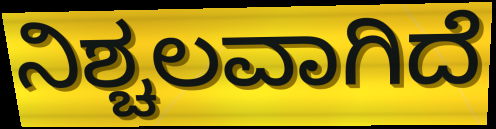
ನಿಶ್ಚಲವಾಗಿದೆ